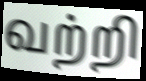
வற்றி